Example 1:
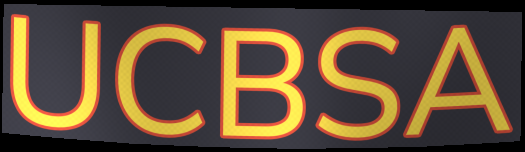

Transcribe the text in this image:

UCBSA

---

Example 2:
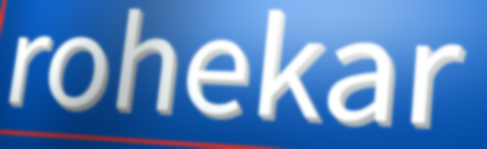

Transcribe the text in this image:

rohekar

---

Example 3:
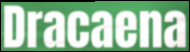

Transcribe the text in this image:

Dracaena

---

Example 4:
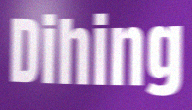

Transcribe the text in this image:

Dihing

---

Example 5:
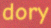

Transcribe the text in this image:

dory